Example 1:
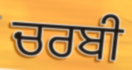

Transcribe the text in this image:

ਚਰਬੀ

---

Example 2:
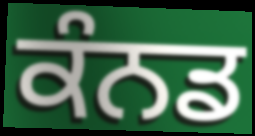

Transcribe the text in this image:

ਕੰਨਡ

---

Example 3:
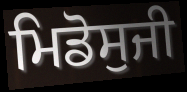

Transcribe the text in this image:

ਮਿਡੋਸੁਜੀ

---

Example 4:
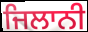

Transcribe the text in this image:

ਜਿਲਾਨੀ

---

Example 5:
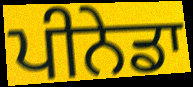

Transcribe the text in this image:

ਪੀਨੇਡਾ